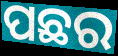
ପଛର